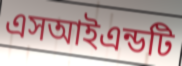
এসআইএন্ডটি